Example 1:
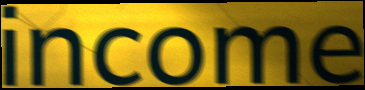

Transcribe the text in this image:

income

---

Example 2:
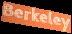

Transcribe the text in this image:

Berkeley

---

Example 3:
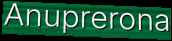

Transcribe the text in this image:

Anuprerona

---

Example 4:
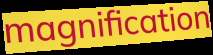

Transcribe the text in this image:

magnification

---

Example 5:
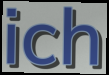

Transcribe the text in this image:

ich